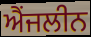
ਐਂਜਲੀਨ